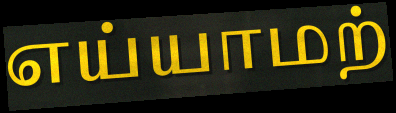
எய்யாமற்